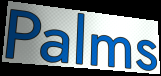
Palms